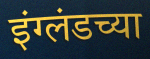
इंग्लंडच्या